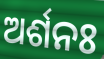
ଅର୍ଶନଃ